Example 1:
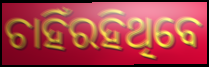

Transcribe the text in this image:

ଚାହିଁରହିଥିବେ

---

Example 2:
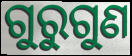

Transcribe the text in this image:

ଗୁରୁଗୁଣ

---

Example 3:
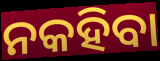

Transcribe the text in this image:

ନକହିବା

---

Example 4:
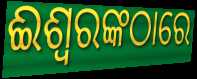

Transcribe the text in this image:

ଈଶ୍ୱରଙ୍କଠାରେ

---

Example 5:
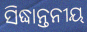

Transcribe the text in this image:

ସିଦ୍ଧାନ୍ତନୀୟ